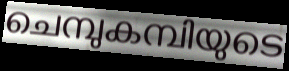
ചെമ്പുകമ്പിയുടെ